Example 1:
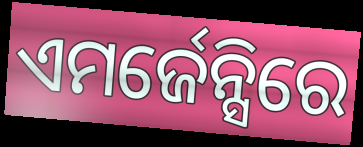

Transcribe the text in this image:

ଏମର୍ଜେନ୍ସିରେ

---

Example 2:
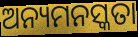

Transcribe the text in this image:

ଅନ୍ୟମନସ୍କତା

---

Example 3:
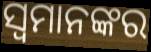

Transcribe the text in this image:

ସ୍ୱମାନଙ୍କର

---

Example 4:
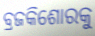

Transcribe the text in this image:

ବ୍ରଜକିଶୋରକୁ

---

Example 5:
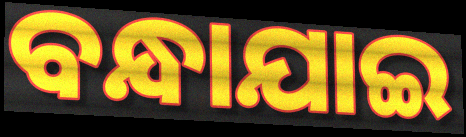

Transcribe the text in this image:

ବନ୍ଧାଯାଇ